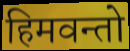
हिमवन्तो